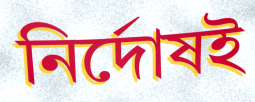
নির্দোষই